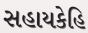
સહાયકેહિ